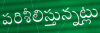
పరిశీలిస్తున్నట్లు